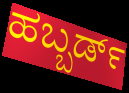
ಹಬ್ಬರ್ಡ್